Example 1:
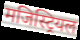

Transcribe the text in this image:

मजिस्ट्रियल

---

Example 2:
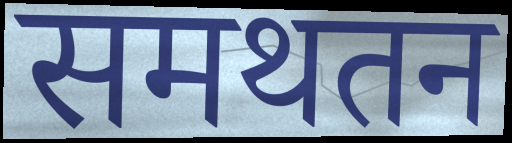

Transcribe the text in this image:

समथतन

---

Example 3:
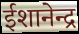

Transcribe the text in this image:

ईशानेन्द्र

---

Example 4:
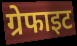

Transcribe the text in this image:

ग्रेफाइट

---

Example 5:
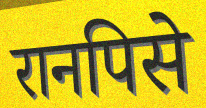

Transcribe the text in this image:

रानपिसे